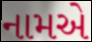
નામએ